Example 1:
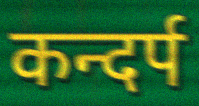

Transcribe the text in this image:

कन्दर्प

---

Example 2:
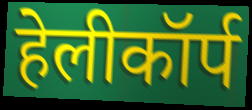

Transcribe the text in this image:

हेलीकॉर्प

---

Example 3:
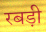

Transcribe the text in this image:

रबड़ी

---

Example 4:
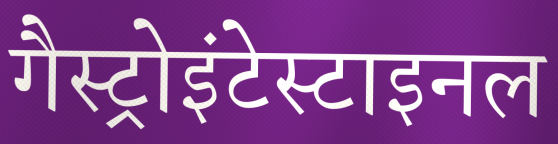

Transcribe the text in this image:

गैस्ट्रोइंटेस्टाइनल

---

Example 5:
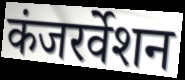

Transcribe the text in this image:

कंजरर्वेशन